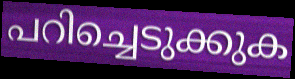
പറിച്ചെടുക്കുക